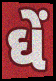
ઘેં